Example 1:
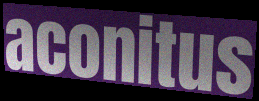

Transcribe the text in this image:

aconitus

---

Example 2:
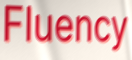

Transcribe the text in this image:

Fluency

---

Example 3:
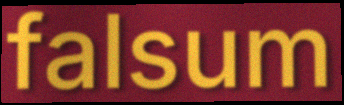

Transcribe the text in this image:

falsum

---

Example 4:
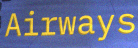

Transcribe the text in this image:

Airways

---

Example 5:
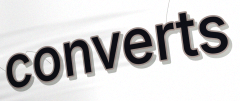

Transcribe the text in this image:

converts